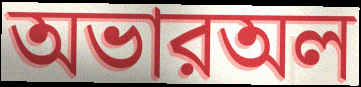
অভারঅল